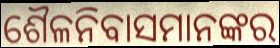
ଶୈଳନିବାସମାନଙ୍କର